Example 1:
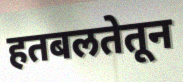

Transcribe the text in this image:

हतबलतेतून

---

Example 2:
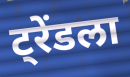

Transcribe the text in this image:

ट्रेंडला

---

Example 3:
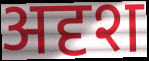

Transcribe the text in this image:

अदृश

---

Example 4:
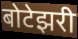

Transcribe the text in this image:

बोटेझरी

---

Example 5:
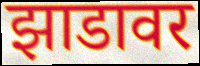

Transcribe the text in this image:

झाडावर